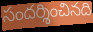
సందర్శించినది